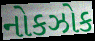
નોકઝોક